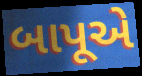
બાપૂએ